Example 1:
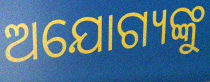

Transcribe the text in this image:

ଅଯୋଗ୍ୟଙ୍କୁ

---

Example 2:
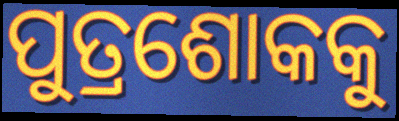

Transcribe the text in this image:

ପୁତ୍ରଶୋକକୁ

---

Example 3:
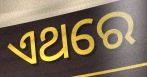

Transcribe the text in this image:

ଏଥରେ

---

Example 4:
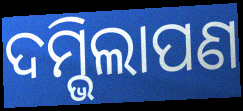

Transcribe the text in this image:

ଦମ୍ଭିଲାପଣ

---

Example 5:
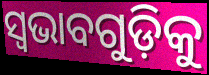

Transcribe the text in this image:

ସ୍ୱଭାବଗୁଡ଼ିକୁ